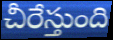
చీరేస్తుంది